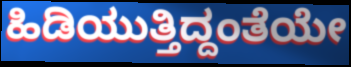
ಹಿಡಿಯುತ್ತಿದ್ದಂತೆಯೇ